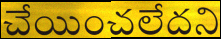
చేయించలేదని